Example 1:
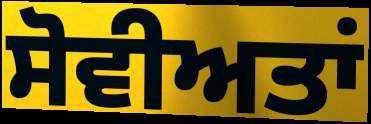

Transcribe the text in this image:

ਸੋਵੀਅਤਾਂ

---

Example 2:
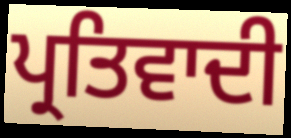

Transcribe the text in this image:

ਪ੍ਰਤਿਵਾਦੀ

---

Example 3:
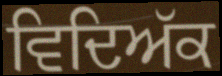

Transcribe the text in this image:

ਵਿਦਿਅੱਕ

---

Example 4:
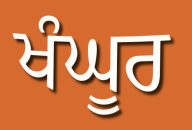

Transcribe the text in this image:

ਖੰਘੂਰ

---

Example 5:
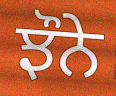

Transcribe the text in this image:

ਝੌਨੇ